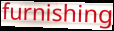
furnishing